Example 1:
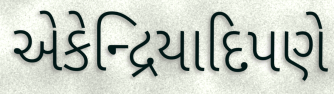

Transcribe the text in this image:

એકેન્દ્રિયાદિપણે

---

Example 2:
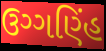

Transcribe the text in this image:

ઉગ્ગણ્હિં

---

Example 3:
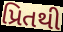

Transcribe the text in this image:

પ્રિતથી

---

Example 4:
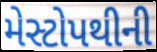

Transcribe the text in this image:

મેસ્ટોપથીની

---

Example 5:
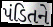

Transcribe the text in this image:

પંડિતને